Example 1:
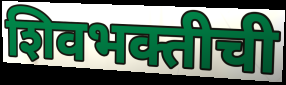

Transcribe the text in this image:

शिवभक्तीची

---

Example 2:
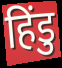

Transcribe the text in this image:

हिंडु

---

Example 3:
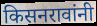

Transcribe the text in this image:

किसनरावांनी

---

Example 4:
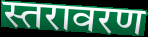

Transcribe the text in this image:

स्तरावरण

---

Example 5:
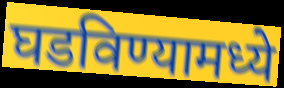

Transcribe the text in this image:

घडविण्यामध्ये